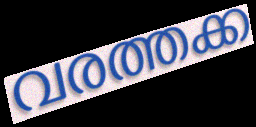
വരത്തക്ക